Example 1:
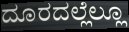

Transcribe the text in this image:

ದೂರದಲ್ಲೆಲ್ಲೂ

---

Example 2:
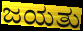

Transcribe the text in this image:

ಜಯತು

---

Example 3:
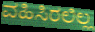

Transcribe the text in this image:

ವಹಿಸಿರಲಿಲ್ಲ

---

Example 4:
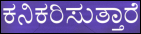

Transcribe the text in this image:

ಕನಿಕರಿಸುತ್ತಾರೆ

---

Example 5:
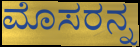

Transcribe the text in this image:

ಮೊಸರನ್ನ